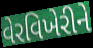
વેરવિખેરીને